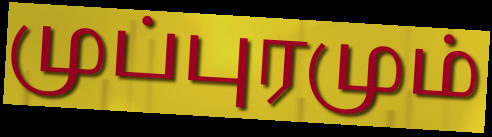
முப்புரமும்